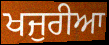
ਖਜੁਰੀਆ